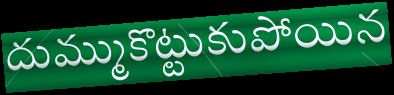
దుమ్ముకొట్టుకుపోయిన